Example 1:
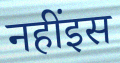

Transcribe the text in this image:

नहींइस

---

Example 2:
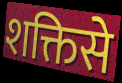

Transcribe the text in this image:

शक्तिसे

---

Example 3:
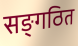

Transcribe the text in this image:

सङ्गठित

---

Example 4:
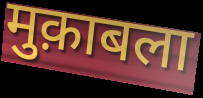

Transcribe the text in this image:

मुक़ाबला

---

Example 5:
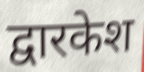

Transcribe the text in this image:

द्वारकेश